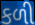
કળી